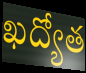
ఖద్యోత